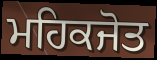
ਮਹਿਕਜੋਤ